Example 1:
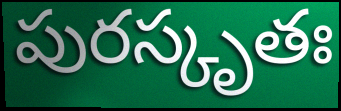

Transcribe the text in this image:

పురస్కృతః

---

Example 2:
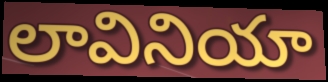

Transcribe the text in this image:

లావినియా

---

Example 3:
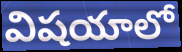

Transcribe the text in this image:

విషయాలో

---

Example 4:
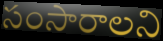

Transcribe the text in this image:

సంసారాలని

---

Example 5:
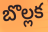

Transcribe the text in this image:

బొల్లక